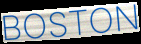
BOSTON